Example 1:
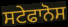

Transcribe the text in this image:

ਸਟੇਫਾਨੋਸ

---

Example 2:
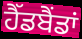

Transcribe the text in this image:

ਹੈੱਡਬੈਂਡਾਂ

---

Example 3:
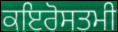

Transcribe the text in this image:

ਕਇਰੋਸਤਮੀ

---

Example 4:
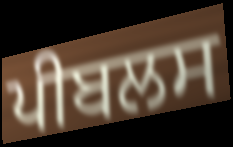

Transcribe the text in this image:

ਪੀਬਲਸ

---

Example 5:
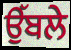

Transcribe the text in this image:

ਉੱਬਲੇ